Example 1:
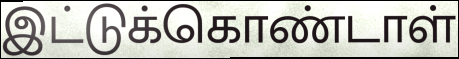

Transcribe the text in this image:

இட்டுக்கொண்டாள்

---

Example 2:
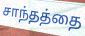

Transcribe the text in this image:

சாந்தத்தை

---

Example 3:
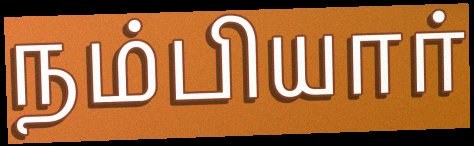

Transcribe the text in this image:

நம்பியார்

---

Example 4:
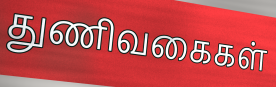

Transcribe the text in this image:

துணிவகைகள்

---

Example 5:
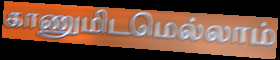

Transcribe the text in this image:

காணுமிடமெல்லாம்